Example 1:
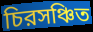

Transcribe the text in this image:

চিরসঞ্চিত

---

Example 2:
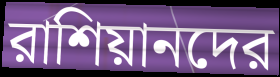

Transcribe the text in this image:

রাশিয়ানদের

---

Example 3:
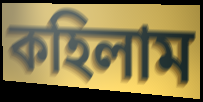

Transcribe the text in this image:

কহিলাম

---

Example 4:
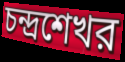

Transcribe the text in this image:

চন্দ্রশেখর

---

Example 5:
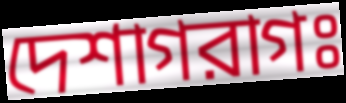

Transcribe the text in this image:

দেশাগরাগঃ